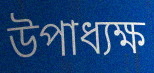
উপাধ্যক্ষ